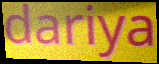
dariya